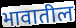
भावातील